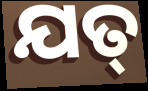
ଯତ୍